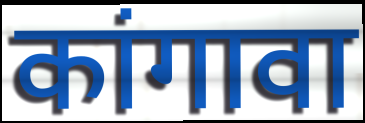
कांगावा